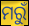
ମରୁଁ